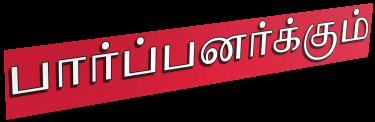
பார்ப்பனர்க்கும்